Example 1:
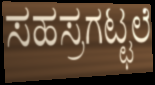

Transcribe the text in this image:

ಸಹಸ್ರಗಟ್ಟಲೆ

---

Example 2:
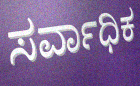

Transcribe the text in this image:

ಸರ್ವಾಧಿಕ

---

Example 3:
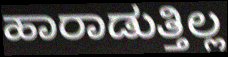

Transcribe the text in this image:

ಹಾರಾಡುತ್ತಿಲ್ಲ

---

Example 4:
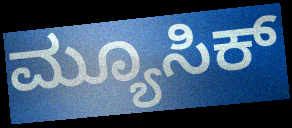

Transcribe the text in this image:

ಮ್ಯೂಸಿಕ್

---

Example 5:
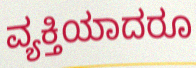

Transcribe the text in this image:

ವ್ಯಕ್ತಿಯಾದರೂ